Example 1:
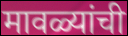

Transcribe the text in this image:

मावळ्यांची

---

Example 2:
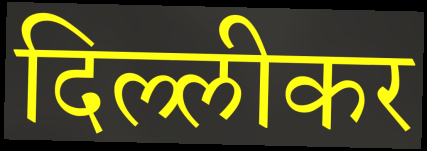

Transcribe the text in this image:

दिल्लीकर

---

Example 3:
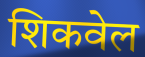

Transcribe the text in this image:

शिकवेल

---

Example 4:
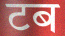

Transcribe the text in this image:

टब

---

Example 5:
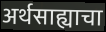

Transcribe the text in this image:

अर्थसाह्याचा